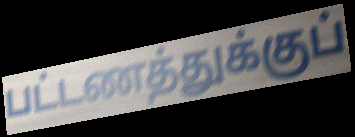
பட்டணத்துக்குப்